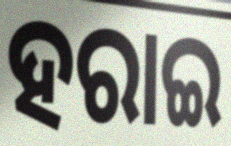
ହରାଇ